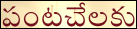
పంటచేలకు